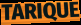
TARIQUE